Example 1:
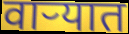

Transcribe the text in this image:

वाऱ्यात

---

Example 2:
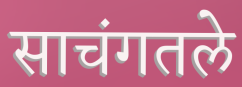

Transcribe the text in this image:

साचंगतले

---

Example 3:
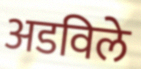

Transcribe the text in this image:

अडविले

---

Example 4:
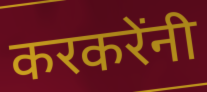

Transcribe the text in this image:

करकरेंनी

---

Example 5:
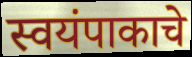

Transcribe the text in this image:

स्वयंपाकाचे